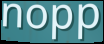
nopp